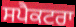
ਸਪੈਕਟਰਾ